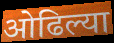
ओढिल्या